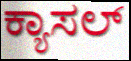
ಕ್ಯಾಸಲ್